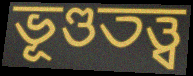
ভূণ্ডতত্ত্ব